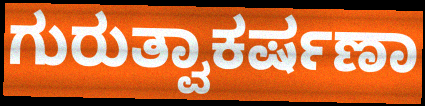
ಗುರುತ್ವಾಕರ್ಷಣಾ